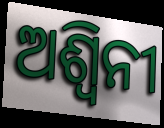
ଅଶ୍ୱିନୀ